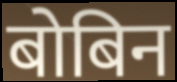
बोबिन